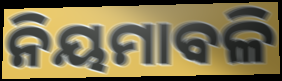
ନିୟମାବଳି